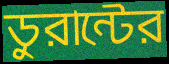
ডুরান্টের